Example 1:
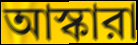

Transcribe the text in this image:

আস্কারা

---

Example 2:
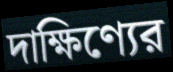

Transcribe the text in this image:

দাক্ষিণ্যের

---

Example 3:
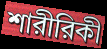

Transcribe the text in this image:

শারীরিকী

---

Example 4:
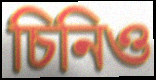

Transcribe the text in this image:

চিনিও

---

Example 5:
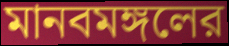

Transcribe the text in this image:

মানবমঙ্গলের